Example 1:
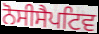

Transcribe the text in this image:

ਨੋਸੀਸੈਪਟਿਵ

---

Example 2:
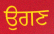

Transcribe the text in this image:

ਉਗਣ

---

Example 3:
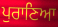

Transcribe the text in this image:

ਪੁਰਾਣਿਆ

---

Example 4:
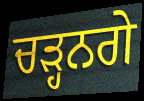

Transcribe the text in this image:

ਚੜ੍ਹਨਗੇ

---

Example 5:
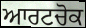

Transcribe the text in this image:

ਆਰਟਚੋਕ